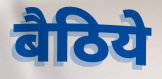
बैठिये